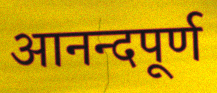
आनन्दपूर्ण